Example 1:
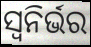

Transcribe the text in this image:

ସ୍ୱନିର୍ଭର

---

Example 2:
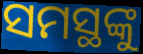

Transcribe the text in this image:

ସମସ୍ଥଙ୍କୁ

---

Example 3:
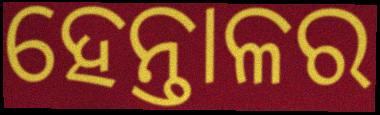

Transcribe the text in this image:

ହେନ୍ତାଳର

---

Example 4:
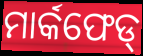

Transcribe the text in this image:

ମାର୍କଫେଡ୍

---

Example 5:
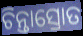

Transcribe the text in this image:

ଚିନ୍ତାସ୍ରୋତ